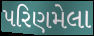
પરિણમેલા